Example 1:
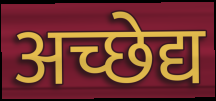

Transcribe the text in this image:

अच्छेद्य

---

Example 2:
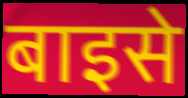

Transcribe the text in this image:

बाइसे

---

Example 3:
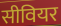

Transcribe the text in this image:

सीवियर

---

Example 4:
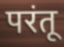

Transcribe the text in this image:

परंतू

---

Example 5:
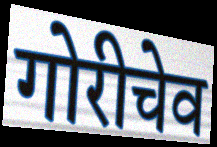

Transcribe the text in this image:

गोरीचेव